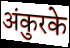
अंकुरके